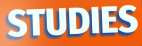
STUDIES